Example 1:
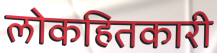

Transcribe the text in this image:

लोकहितकारी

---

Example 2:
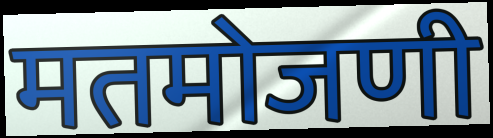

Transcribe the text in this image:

मतमोजणी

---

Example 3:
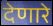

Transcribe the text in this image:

देणारे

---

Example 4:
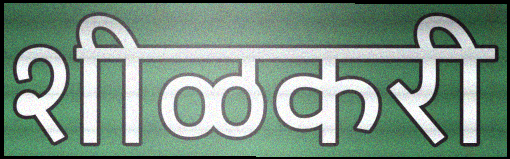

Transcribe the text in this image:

शीळकरी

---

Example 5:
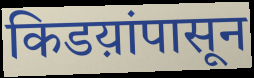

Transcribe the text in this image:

किडय़ांपासून